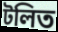
টলিত